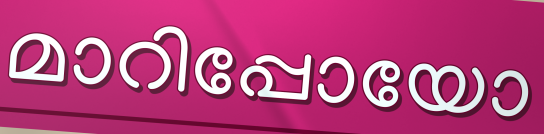
മാറിപ്പോയോ